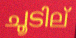
ചൂടില്